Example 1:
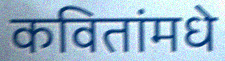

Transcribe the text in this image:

कवितांमधे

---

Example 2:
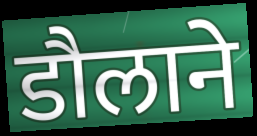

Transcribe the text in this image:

डौलाने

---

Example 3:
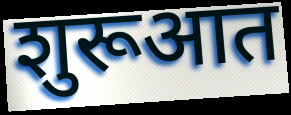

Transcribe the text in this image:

शुरूआत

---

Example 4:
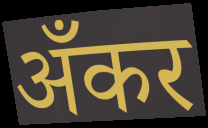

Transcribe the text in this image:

अँकर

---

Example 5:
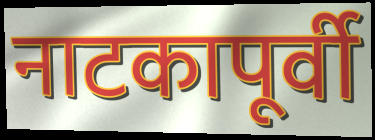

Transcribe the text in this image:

नाटकापूर्वी